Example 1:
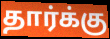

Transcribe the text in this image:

தார்க்கு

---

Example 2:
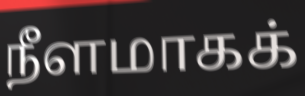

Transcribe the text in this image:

நீளமாகக்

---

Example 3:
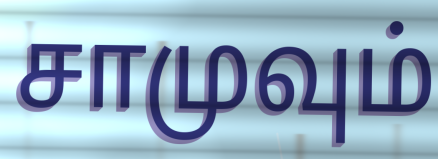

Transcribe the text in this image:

சாமுவும்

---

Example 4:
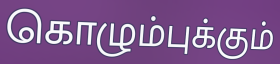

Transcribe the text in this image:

கொழும்புக்கும்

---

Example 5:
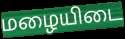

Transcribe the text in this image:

மழையிடை